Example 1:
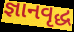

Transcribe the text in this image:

જ્ઞાનવૃદ્ધ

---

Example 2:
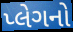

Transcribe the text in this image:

પ્લેગનો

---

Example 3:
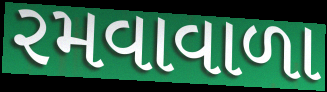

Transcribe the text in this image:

રમવાવાળા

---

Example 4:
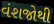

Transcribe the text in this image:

વંશજોથી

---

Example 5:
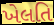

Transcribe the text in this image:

ખેલતિ